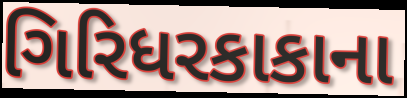
ગિરિધરકાકાના